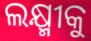
ଲକ୍ଷ୍ମୀକୁ